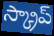
స్క్రాప్